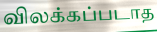
விலக்கப்படாத